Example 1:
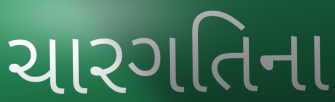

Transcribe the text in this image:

ચારગતિના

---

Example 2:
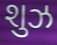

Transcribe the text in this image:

શુઝ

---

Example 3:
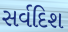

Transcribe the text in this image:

સર્વદિશ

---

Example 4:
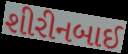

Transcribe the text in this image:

શીરીનબાઈ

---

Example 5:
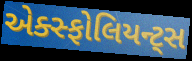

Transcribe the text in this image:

એક્સ્ફોલિયન્ટ્સ